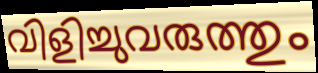
വിളിച്ചുവരുത്തും